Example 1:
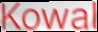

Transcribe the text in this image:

Kowal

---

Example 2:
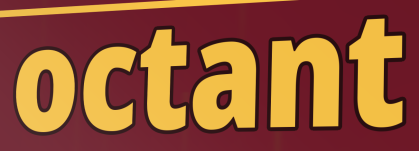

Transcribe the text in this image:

octant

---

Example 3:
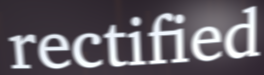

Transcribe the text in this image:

rectified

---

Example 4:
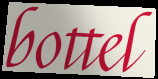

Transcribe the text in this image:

bottel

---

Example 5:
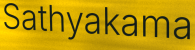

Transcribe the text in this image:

Sathyakama